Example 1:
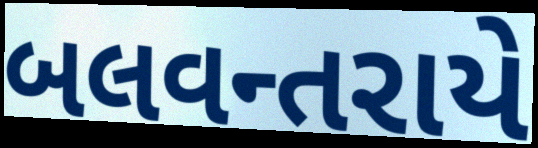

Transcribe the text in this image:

બલવન્તરાયે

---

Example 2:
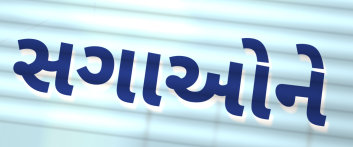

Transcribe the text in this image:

સગાઓને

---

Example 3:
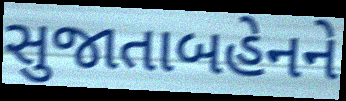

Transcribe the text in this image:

સુજાતાબહેનને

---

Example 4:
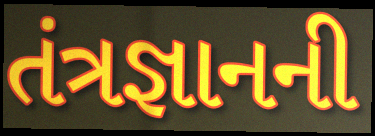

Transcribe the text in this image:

તંત્રજ્ઞાનની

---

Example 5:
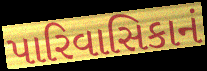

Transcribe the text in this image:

પારિવાસિકાનં